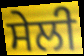
ਸੇਲੀ